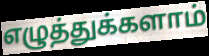
எழுத்துக்களாம்